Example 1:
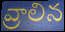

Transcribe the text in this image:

వ్రాలిన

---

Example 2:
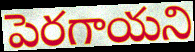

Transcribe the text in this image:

పెరగాయని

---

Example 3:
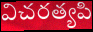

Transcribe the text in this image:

విచరత్యపి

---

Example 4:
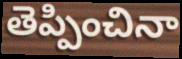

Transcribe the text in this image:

తెప్పించినా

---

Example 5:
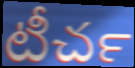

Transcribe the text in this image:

టీచర్‍